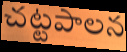
చట్టపాలన